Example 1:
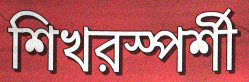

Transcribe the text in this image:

শিখরস্পর্শী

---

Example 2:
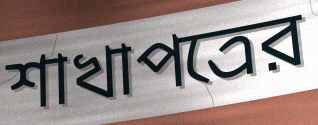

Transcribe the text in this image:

শাখাপত্রের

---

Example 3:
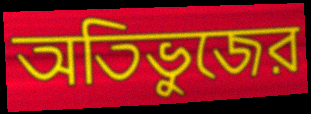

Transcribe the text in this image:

অতিভুজের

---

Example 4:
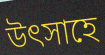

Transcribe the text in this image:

উত্‍সাহে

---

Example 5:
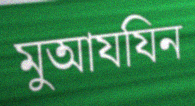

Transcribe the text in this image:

মুআযযিন